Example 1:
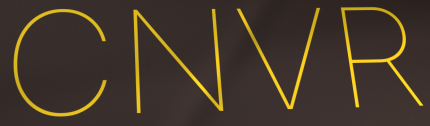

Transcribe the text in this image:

CNVR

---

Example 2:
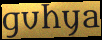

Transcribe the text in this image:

guhya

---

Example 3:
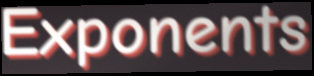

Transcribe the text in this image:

Exponents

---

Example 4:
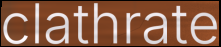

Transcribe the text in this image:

clathrate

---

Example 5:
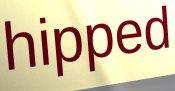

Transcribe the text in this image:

hipped